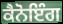
ਕੈਨੋਇੰਗ